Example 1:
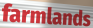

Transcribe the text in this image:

farmlands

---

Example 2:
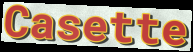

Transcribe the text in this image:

Casette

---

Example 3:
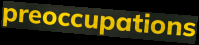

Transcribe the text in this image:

preoccupations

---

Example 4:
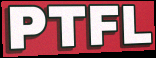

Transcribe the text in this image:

PTFL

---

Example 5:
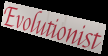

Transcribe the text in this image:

Evolutionist